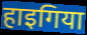
हाइगिया